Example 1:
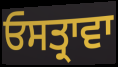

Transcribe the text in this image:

ਓਸਤ੍ਰਾਵਾ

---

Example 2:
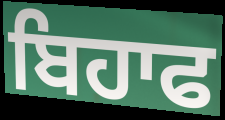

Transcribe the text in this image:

ਬਿਹਾਫ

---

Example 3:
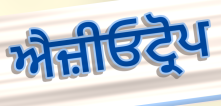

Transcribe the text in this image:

ਐਜ਼ੀਓਟ੍ਰੋਪ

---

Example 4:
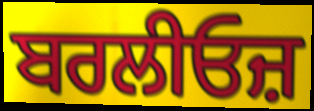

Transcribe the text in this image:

ਬਰਲੀਓਜ਼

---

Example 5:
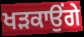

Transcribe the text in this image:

ਖੜਕਾਉਂਗੇ